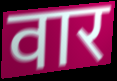
वार